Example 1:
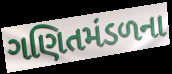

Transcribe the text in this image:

ગણિતમંડળના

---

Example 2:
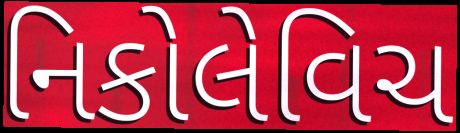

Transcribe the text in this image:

નિકોલેવિચ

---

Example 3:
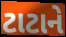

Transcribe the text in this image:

ટાટાને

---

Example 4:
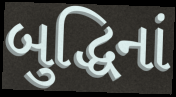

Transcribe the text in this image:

બુદ્ધિનાં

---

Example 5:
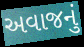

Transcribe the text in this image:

અવાજનું